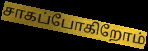
சாகப்போகிறோம்